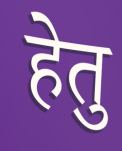
हेतु